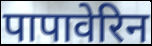
पापावेरिन